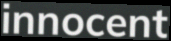
innocent